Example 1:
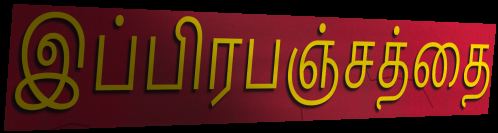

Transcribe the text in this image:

இப்பிரபஞ்சத்தை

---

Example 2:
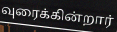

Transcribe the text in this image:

வுரைக்கின்றார்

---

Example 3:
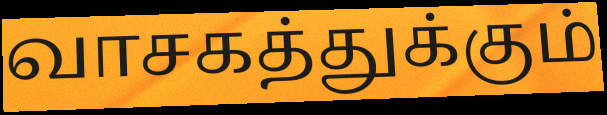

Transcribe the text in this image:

வாசகத்துக்கும்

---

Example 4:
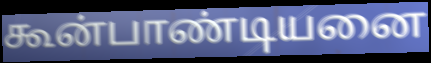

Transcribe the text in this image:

கூன்பாண்டியனை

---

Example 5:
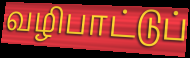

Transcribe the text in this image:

வழிபாட்டுப்